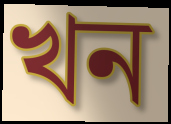
খন